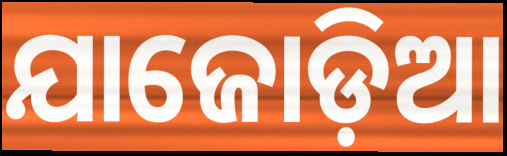
ଯାଜୋଡ଼ିଆ